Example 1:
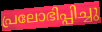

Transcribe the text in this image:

പ്രലോഭിപ്പിച്ചു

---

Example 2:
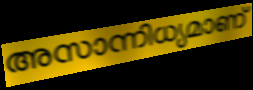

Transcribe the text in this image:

അസാന്നിധ്യമാണ്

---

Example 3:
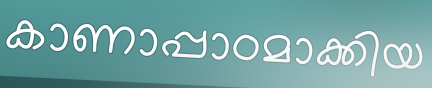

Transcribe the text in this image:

കാണാപ്പാഠമാക്കിയ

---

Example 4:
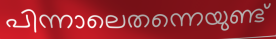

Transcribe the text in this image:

പിന്നാലെതന്നെയുണ്ട്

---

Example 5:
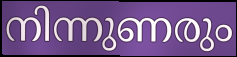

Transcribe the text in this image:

നിന്നുണരും